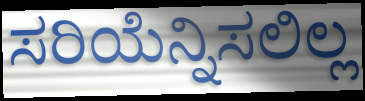
ಸರಿಯೆನ್ನಿಸಲಿಲ್ಲ